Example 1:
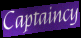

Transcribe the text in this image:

Captaincy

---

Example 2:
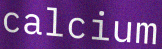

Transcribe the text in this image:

calcium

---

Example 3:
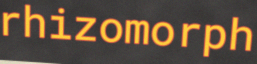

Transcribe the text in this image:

rhizomorph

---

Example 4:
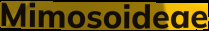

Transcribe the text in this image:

Mimosoideae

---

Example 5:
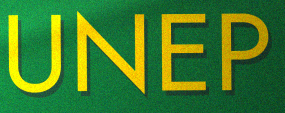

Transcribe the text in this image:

UNEP